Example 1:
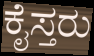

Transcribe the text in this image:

ಕೈಸ್ತರು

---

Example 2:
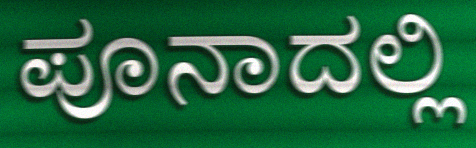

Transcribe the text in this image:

ಪೂನಾದಲ್ಲಿ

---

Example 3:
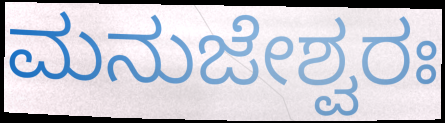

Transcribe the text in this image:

ಮನುಜೇಶ್ವರಃ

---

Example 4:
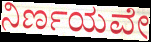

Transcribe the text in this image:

ನಿರ್ಣಯವೇ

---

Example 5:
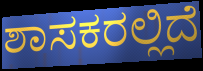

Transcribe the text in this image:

ಶಾಸಕರಲ್ಲಿದೆ